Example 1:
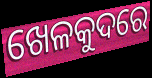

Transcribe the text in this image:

ଖେଳକୁଦରେ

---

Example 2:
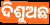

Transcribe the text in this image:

ଦିଶୁଅଛ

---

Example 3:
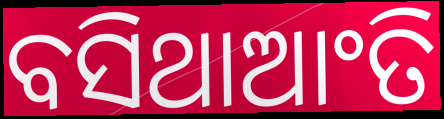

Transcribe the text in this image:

ବସିଥାଆଂତି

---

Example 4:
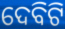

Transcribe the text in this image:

ଦେବିଟି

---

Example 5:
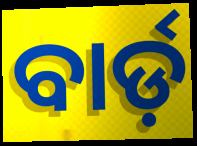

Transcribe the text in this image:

ବାର୍ଡ଼